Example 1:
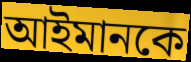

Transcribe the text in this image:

আইমানকে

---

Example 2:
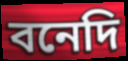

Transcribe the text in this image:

বনেদি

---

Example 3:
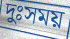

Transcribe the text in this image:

দুঃসময়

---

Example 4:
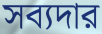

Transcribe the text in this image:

সব্যদার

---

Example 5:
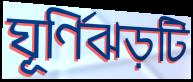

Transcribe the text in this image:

ঘূর্ণিঝড়টি